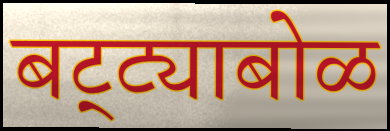
बट्ट्याबोळ